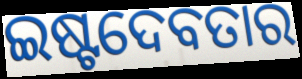
ଇଷ୍ଟଦେବତାର